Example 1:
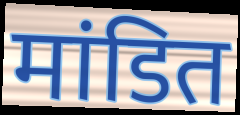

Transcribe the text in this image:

मांडित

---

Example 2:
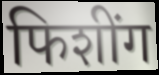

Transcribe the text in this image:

फिशींग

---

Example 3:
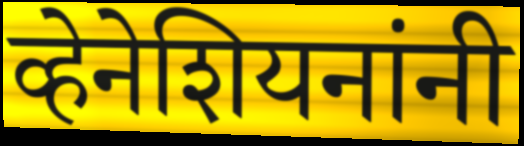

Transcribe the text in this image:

व्हेनेशियनांनी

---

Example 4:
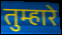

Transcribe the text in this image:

तुम्हारे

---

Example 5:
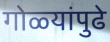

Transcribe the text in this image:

गोळ्यांपुढे